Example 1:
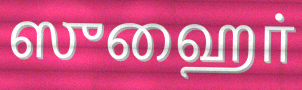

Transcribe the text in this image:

ஸுஹைர்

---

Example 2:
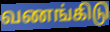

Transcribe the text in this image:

வணங்கிடு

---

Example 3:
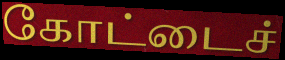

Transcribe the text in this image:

கோட்டைச்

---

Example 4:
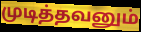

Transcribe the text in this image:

முடித்தவனும்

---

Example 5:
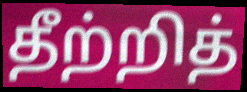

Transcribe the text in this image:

தீற்றித்